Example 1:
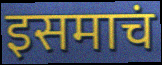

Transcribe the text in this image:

इसमाचं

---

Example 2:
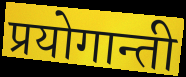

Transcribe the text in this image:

प्रयोगान्ती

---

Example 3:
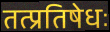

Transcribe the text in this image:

तत्प्रतिषेधः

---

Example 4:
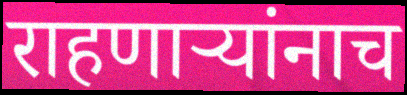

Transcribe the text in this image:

राहणाऱ्यांनाच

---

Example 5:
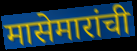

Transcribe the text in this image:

मासेमारांची